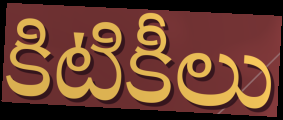
కిటికీలు